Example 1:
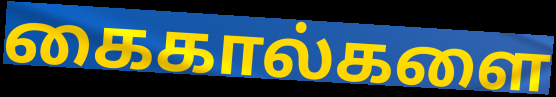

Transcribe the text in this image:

கைகால்களை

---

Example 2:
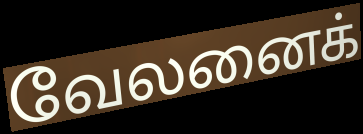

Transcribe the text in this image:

வேலனைக்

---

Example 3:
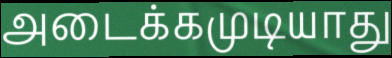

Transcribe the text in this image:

அடைக்கமுடியாது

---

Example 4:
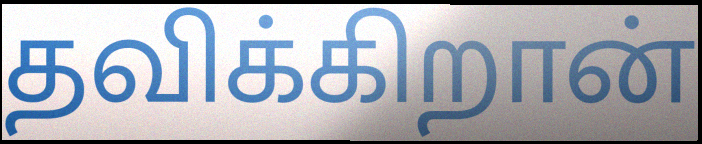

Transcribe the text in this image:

தவிக்கிறான்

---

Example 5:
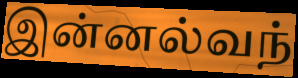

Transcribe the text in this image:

இன்னல்வந்